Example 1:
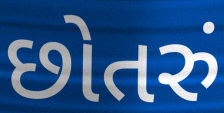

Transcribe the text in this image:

છોતરું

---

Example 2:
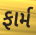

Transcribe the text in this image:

ફાર્મ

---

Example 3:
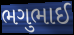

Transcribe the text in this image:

ભગુભાઈ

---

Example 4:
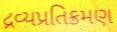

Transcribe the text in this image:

દ્રવ્યપ્રતિક્રમણ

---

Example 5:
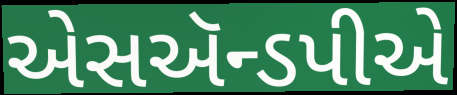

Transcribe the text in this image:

એસઍન્ડપીએ